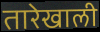
तारेखाली